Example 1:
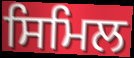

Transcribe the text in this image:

ਸਿਮਿਲ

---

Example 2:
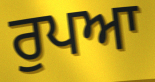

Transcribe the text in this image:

ਰੁਪਆ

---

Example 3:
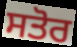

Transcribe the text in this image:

ਸਤੋਰ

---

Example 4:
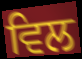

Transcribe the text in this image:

ਵਿਲ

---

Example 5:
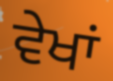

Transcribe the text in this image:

ਵੇਖਾਂ